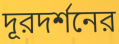
দূরদর্শনের